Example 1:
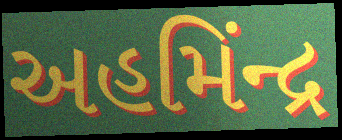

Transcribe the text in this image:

અહમિંન્દ્ર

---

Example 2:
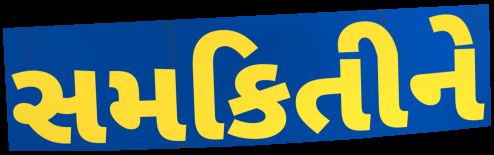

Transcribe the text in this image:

સમકિતીને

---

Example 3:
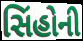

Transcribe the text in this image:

સિંહોની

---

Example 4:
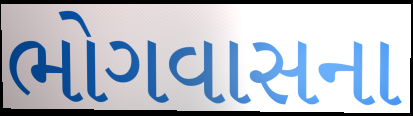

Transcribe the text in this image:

ભોગવાસના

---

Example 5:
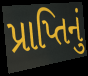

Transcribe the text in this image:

પ્રાપ્‍તિનું